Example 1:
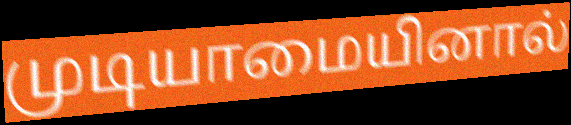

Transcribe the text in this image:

முடியாமையினால்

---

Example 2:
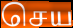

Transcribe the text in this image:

செய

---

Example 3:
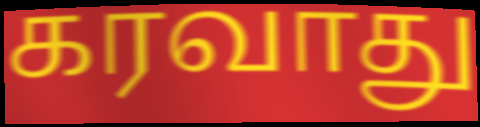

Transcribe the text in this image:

கரவாது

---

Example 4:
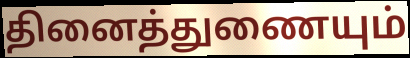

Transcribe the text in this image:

தினைத்துணையும்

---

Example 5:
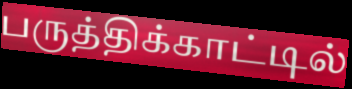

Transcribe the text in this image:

பருத்திக்காட்டில்